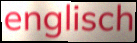
englisch